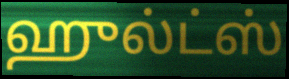
ஹுல்ட்ஸ்